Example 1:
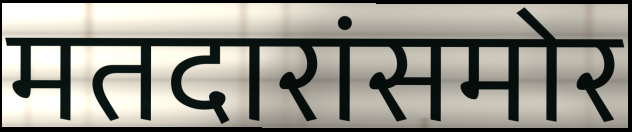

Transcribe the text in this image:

मतदारांसमोर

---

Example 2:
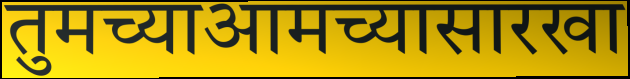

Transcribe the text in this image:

तुमच्याआमच्यासारखा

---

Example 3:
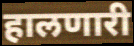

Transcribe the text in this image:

हालणारी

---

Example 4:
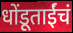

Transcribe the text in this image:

धोंडूताईंचं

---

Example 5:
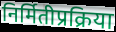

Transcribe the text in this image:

निर्मितीप्रक्रिया